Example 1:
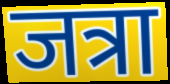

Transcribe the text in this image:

जत्रा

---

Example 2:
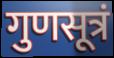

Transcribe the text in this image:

गुणसूत्रं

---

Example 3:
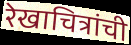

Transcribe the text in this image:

रेखाचित्रांची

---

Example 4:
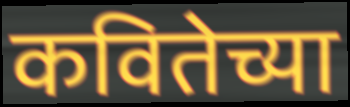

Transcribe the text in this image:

कवितेच्या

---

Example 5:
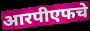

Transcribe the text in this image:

आरपीएफचे